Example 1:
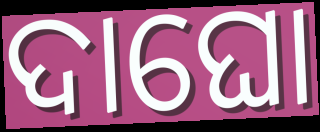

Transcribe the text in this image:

ଦାଘୋ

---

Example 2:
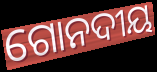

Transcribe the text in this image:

ଗୋନଦୀୟ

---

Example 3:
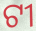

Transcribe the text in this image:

ଟୀ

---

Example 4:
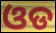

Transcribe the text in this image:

ଓଡ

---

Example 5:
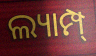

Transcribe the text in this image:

ଲ୍ୟାମ୍ପ୍